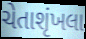
ચેતાશૃંખલા